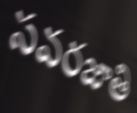
సవరజాతి